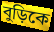
বুড়িকে